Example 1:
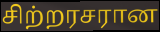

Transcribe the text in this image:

சிற்றரசரான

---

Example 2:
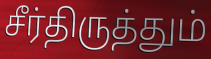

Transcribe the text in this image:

சீர்திருத்தும்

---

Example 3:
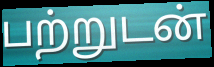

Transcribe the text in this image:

பற்றுடன்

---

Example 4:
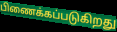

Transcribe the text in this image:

பிணைக்கப்படுகிறது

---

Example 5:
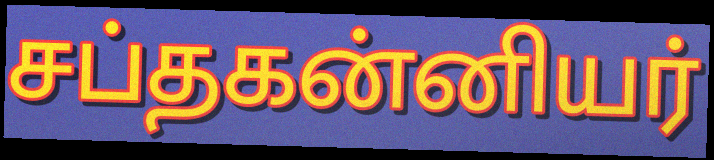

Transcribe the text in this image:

சப்தகன்னியர்